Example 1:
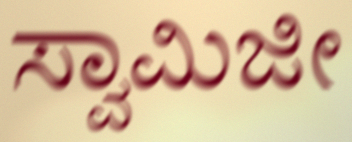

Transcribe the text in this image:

ಸ್ವಾಮಿಜೀ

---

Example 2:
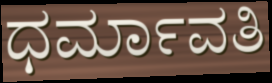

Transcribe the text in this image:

ಧರ್ಮಾವತಿ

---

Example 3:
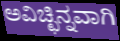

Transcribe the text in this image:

ಅವಿಚ್ಛಿನ್ನವಾಗಿ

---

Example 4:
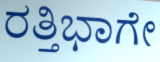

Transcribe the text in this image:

ರತ್ತಿಭಾಗೇ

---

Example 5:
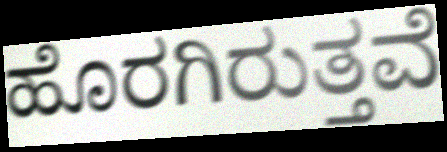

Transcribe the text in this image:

ಹೊರಗಿರುತ್ತವೆ